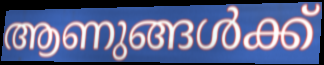
ആണുങ്ങൾക്ക്